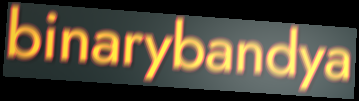
binarybandya